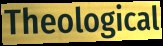
Theological